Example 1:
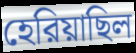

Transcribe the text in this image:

হেরিয়াছিল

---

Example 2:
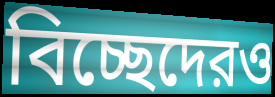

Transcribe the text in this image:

বিচ্ছেদেরও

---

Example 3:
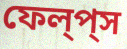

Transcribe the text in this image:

ফেল্‌প্‌স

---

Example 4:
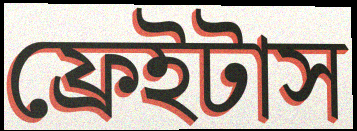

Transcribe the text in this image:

ফ্রেইটাস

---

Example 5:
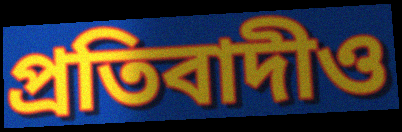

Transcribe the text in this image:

প্রতিবাদীও